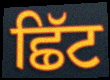
ਛਿੱਟ